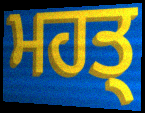
ਮਹਤ੍